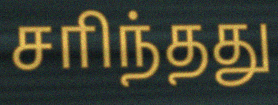
சரிந்தது